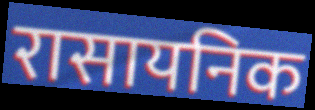
रासायनिक